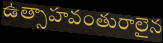
ఉత్సాహవంతురాలైన